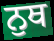
ਨੁਥ